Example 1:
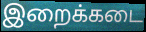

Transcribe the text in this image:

இறைக்கடை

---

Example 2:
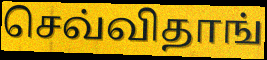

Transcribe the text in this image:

செவ்விதாங்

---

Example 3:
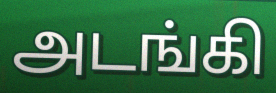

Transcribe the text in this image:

அடங்கி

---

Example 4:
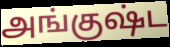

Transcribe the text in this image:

அங்குஷ்ட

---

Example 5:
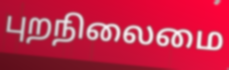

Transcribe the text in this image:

புறநிலைமை